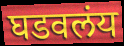
घडवलंय